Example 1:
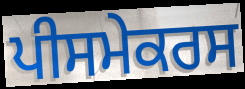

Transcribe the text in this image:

ਪੀਸਮੇਕਰਸ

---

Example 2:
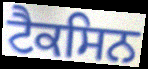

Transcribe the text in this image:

ਟੈਕਸਿਨ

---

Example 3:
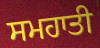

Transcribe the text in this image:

ਸਮਹਾਤੀ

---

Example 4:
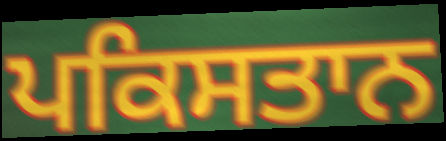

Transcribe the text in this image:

ਪਕਿਸਤਾਨ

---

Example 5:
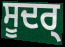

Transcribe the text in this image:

ਸੂਦਰ੍